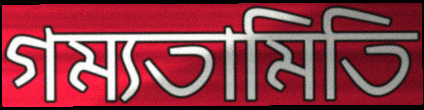
গম্যতামিতি